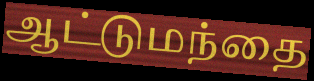
ஆட்டுமந்தை